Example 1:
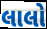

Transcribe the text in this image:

લાલો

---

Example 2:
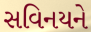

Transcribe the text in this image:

સવિનયને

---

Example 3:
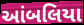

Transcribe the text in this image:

આંબલિયા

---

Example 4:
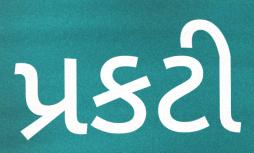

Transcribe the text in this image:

પ્રકટી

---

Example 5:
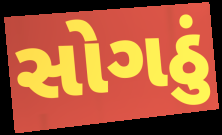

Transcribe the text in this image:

સોગઠું